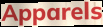
Apparels